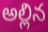
అల్లిన